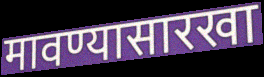
मावण्यासारखा